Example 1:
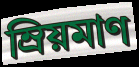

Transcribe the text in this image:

ম্রিয়মাণ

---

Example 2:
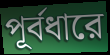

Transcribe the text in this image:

পূর্বধারে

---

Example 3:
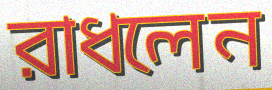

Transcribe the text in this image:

রাধলেন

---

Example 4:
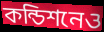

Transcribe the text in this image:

কন্ডিশনেও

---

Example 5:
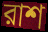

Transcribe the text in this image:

রাশ